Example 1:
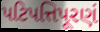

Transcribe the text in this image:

પટિપત્તિપૂરણં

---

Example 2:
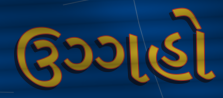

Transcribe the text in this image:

ઉગ્ગહો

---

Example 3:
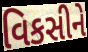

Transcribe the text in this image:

વિકસીને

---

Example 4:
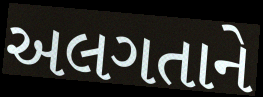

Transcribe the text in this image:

અલગતાને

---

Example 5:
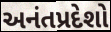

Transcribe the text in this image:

અનંતપ્રદેશો